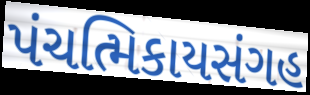
પંચત્મિકાયસંગહ